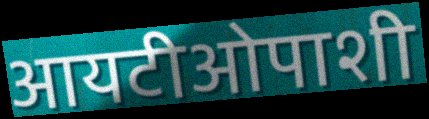
आयटीओपाशी